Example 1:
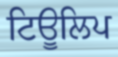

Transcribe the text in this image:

ਟਿਊਲਿਪ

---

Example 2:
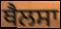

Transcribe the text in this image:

ਥੈਲਸਾ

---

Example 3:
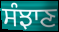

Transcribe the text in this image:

ਸੰਝਾਣ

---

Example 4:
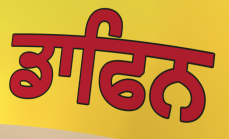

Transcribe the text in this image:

ਡਾਫਿਨ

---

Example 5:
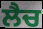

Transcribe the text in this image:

ਲੈਚ